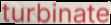
turbinate